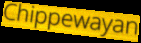
Chippewayan